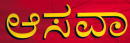
ಆಸವಾ